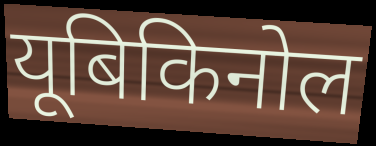
यूबिकिनोल